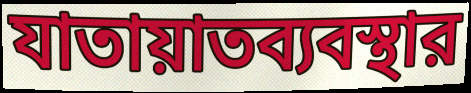
যাতায়াতব্যবস্থার